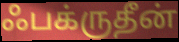
ஃபக்ருதீன்